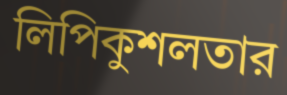
লিপিকুশলতার